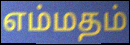
எம்மதம்